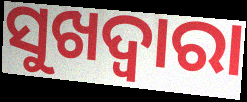
ସୁଖଦ୍ଵାରା